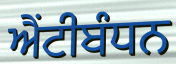
ਐਂਟੀਬੰਧਨ